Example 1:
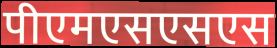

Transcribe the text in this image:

पीएमएसएसएस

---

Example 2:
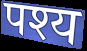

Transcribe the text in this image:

पश्य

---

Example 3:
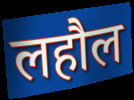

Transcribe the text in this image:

लहौल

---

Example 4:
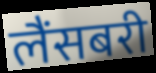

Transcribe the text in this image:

लैंसबरी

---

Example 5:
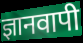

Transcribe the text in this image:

ज्ञानवापी